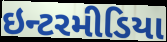
ઇન્ટરમીડિયા